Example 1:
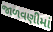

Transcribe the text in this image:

જાળવણીમાં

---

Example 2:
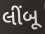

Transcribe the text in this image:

લીંબૂ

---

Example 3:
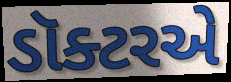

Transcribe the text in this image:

ડૉક્ટરએ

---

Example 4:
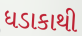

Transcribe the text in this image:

ધડાકાથી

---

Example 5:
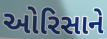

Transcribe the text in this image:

ઓરિસાને